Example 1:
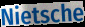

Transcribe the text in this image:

Nietsche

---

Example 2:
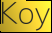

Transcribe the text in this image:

Koy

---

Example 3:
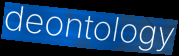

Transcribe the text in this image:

deontology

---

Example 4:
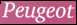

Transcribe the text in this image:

Peugeot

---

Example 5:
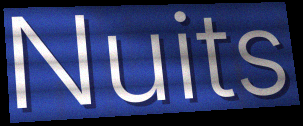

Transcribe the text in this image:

Nuits